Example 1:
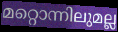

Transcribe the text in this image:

മറ്റൊന്നിലുമല്ല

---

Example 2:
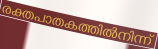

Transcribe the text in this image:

രക്തപാതകത്തിൽനിന്ന്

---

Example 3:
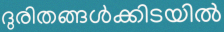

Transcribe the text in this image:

ദുരിതങ്ങൾക്കിടയിൽ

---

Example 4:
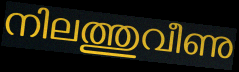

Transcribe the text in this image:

നിലത്തുവീണു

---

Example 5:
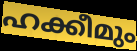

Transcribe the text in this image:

ഹക്കീമും